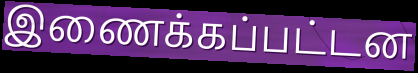
இணைக்கப்பட்டன